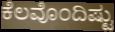
ಕೆಲವೊಂದಿಷ್ಟು